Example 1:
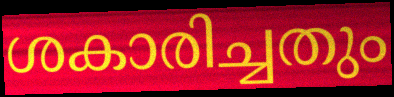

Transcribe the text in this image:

ശകാരിച്ചതും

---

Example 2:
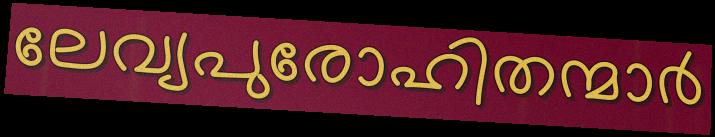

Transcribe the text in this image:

ലേവ്യപുരോഹിതന്മാർ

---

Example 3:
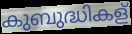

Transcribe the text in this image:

കുബുദ്ധികള്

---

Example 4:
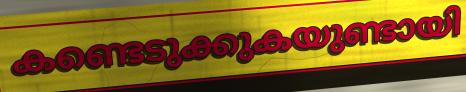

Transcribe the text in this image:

കണ്ടെടുക്കുകയുണ്ടായി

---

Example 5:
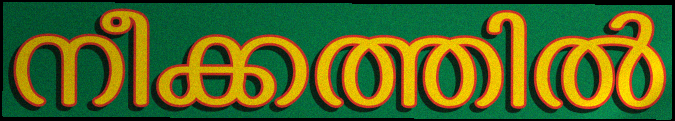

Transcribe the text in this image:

നീക്കത്തിൽ